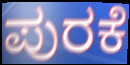
ಪುರಕೆ